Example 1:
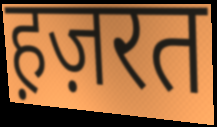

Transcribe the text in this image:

ह़ज़रत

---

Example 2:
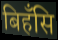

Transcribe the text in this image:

बिहँसि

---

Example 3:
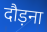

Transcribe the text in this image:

दौड़ना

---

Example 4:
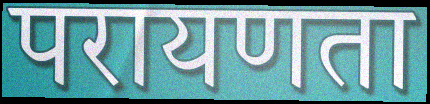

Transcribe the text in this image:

परायणता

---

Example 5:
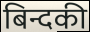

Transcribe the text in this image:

बिन्दकी